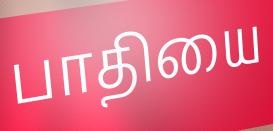
பாதியை